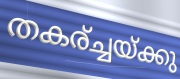
തകര്ച്ചയ്ക്കു